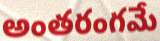
అంతరంగమే